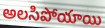
అలసిపోయాయి